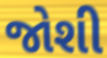
જોશી